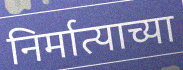
निर्मात्याच्या